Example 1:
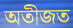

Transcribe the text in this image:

অতীজত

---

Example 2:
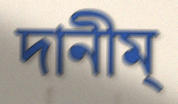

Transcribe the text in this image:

দানীম্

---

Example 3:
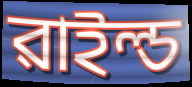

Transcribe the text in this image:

ৱাইল্ড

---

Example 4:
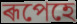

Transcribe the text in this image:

ৰূপেহে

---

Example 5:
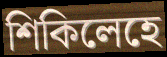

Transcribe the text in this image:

শিকিলেহে